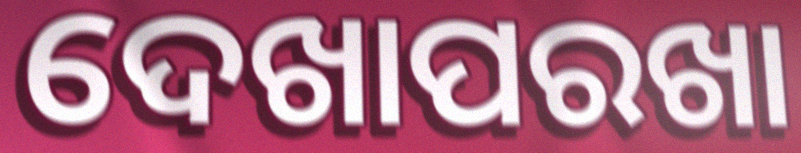
ଦେଖାପରଖା